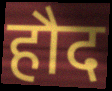
हौद